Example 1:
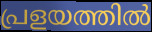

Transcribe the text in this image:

പ്രളയത്തിൽ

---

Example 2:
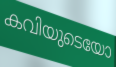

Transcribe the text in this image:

കവിയുടെയോ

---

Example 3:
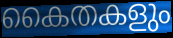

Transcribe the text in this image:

കൈതകളും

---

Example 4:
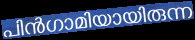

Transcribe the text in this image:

പിൻഗാമിയായിരുന്ന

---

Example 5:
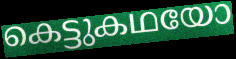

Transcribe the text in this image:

കെട്ടുകഥയോ